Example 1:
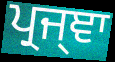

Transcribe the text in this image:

ਪ੍ਰਜ੍ਞਾ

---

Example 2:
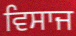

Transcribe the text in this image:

ਵਿਸਾਜ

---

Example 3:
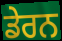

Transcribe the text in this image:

ਡੇਰਨ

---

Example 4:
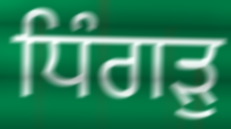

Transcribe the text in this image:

ਧਿੰਗੜੁ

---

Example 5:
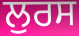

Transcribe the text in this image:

ਲੁਰਸ